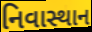
નિવાસ્થાન